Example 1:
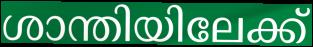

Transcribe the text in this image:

ശാന്തിയിലേക്ക്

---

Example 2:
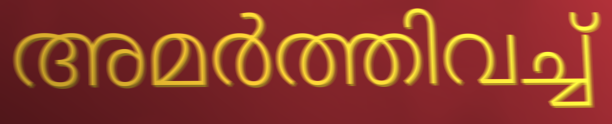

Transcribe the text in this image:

അമർത്തിവച്ച്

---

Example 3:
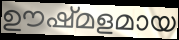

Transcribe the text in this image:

ഊഷ്‌മളമായ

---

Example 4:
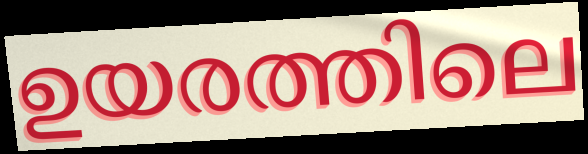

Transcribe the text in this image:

ഉയരത്തിലെ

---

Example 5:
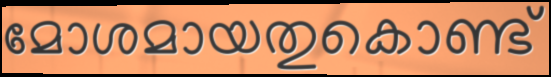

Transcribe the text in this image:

മോശമായതുകൊണ്ട്